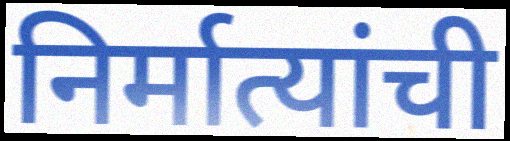
निर्मात्यांची